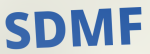
SDMF